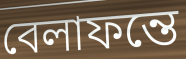
বেলাফন্তে